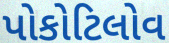
પોકોટિલોવ